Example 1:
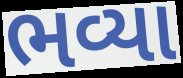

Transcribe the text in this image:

ભવ્યા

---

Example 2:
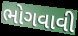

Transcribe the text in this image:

ભોગવાવી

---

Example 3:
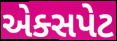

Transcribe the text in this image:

એક્સપેટ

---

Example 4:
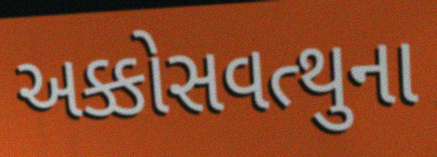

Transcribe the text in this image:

અક્કોસવત્થુના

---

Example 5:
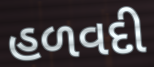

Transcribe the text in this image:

હળવદી